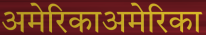
अमेरिकाअमेरिका